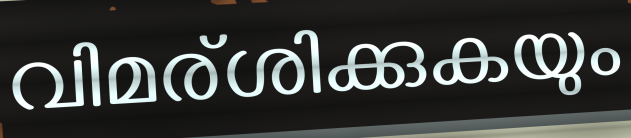
വിമര്ശിക്കുകയും